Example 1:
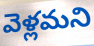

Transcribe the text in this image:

వెళ్లమని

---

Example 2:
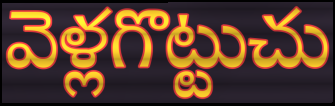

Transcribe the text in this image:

వెళ్లగొట్టుచు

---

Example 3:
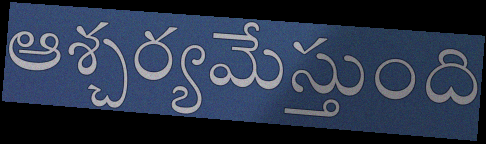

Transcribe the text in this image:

ఆశ్చర్యమేస్తుంది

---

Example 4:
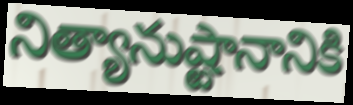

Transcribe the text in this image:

నిత్యానుష్టానానికి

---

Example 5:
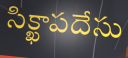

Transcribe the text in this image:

సిక్ఖాపదేసు